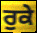
ਰੁਕੇ